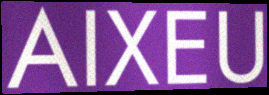
AIXEU